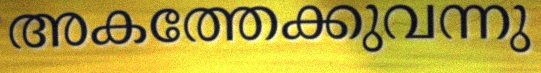
അകത്തേക്കുവന്നു